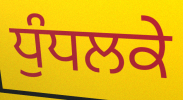
ਧੁੰਧਲਕੇ